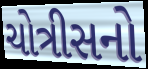
ચોત્રીસનો